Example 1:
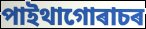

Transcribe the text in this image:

পাইথাগোৰাচৰ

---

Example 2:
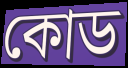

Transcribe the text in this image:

কোড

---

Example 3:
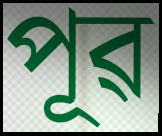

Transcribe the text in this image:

পূৱ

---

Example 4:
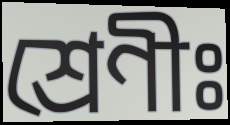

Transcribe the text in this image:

শ্ৰেণীঃ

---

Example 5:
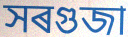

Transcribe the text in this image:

সৰগুজা